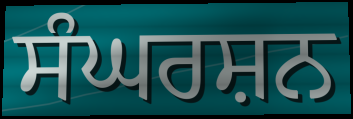
ਸੰਘਰਸ਼ਨ